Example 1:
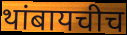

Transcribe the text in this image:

थांबायचीच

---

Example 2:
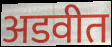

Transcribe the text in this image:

अडवीत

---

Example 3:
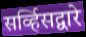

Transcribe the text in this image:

सर्व्हिसद्वारे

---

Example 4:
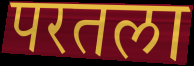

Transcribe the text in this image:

परतला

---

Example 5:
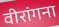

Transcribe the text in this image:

वीरांगना